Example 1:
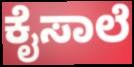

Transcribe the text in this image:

ಕೈಸಾಲೆ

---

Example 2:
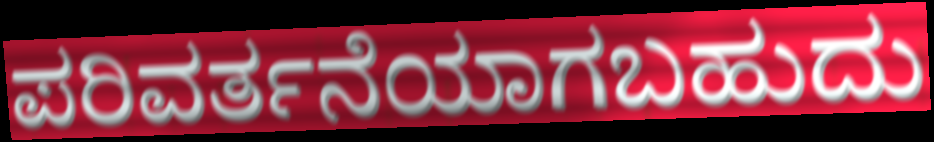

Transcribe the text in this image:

ಪರಿವರ್ತನೆಯಾಗಬಹುದು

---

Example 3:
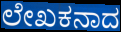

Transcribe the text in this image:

ಲೇಖಕನಾದ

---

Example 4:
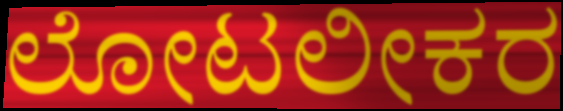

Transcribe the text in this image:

ಲೋಟಲೀಕರ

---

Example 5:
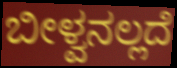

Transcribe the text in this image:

ಬೀಳ್ವನಲ್ಲದೆ